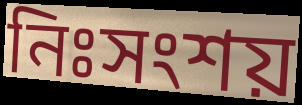
নিঃসংশয়